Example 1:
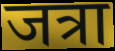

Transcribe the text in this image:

जत्रा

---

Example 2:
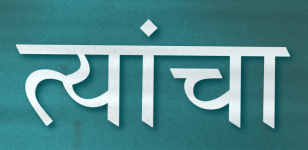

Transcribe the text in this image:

त्यांचा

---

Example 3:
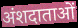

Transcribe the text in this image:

अंशदाताओं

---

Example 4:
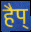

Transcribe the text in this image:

हैप्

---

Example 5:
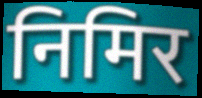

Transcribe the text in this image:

निमिर